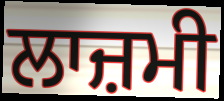
ਲਾਜ਼ਮੀ